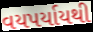
વયપર્યાયથી